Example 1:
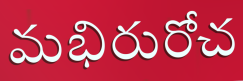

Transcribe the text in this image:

మభిరురోచ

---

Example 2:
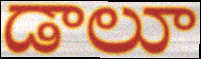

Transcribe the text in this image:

డాలూ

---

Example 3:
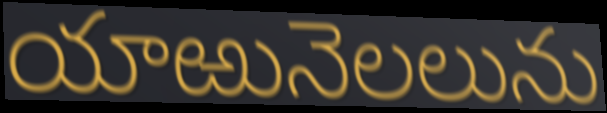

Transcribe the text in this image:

యాఱునెలలును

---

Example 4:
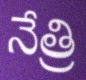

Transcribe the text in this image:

నేత్రి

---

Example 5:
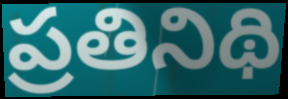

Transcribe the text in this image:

ప్రతినిథి